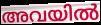
അവയിൽ